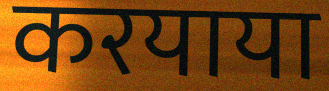
करयाया